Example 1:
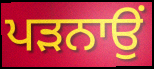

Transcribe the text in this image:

ਪਡ਼ਨਾਉਂ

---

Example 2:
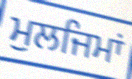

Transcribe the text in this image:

ਮੁਲਜਿਮਾਂ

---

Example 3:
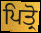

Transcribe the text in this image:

ਪਿਤ੍ਰੋ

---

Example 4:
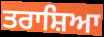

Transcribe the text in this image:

ਤਰਾਸ਼ਿਆ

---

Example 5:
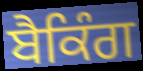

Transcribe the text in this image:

ਬੈਕਿੰਗ